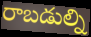
రాబడుల్ని